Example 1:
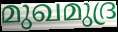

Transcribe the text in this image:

മുഖമുദ്ര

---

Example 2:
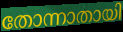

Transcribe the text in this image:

തോന്നാതായി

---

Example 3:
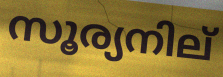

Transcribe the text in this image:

സൂര്യനില്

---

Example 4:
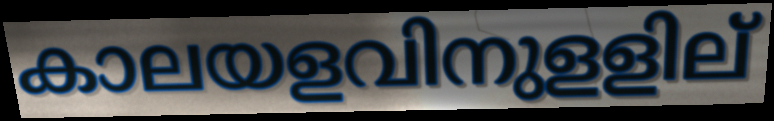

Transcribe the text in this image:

കാലയളവിനുളളില്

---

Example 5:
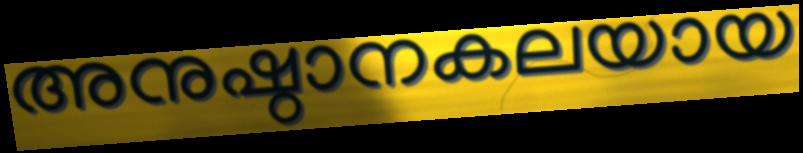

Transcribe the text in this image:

അനുഷ്ഠാനകലയായ